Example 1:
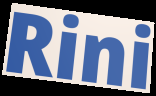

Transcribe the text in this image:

Rini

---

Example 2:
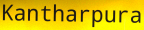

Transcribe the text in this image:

Kantharpura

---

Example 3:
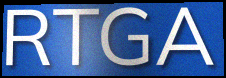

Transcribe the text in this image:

RTGA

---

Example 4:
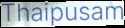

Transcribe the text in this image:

Thaipusam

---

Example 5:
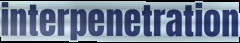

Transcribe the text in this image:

interpenetration